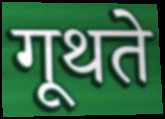
गूथते